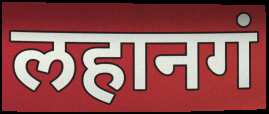
लहानगं